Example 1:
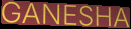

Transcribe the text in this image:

GANESHA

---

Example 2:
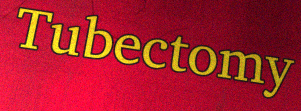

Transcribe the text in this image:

Tubectomy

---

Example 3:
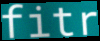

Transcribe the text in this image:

fitr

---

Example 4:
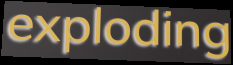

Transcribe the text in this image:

exploding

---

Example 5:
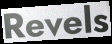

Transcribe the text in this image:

Revels